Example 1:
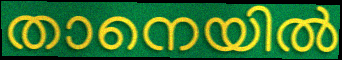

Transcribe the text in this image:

താനെയിൽ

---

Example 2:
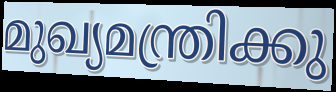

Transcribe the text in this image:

മുഖ്യമന്ത്രിക്കു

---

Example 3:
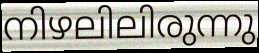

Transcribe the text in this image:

നിഴലിലിരുന്നു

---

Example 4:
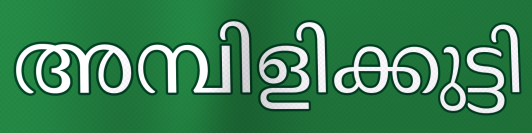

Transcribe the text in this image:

അമ്പിളിക്കുട്ടി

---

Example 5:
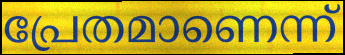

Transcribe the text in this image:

പ്രേതമാണെന്ന്